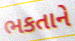
ભકતાને